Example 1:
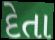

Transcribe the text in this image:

દેતા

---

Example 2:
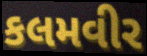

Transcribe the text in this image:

કલમવીર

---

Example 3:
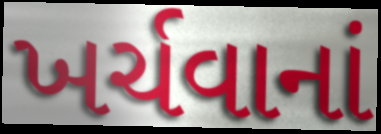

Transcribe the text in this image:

ખર્ચવાનાં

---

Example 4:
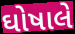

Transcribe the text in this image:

ઘોષાલે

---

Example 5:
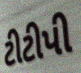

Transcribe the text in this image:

ટીટીપી